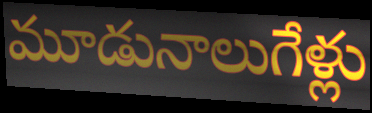
మూడునాలుగేళ్లు